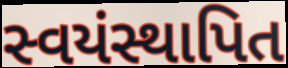
સ્વયંસ્થાપિત